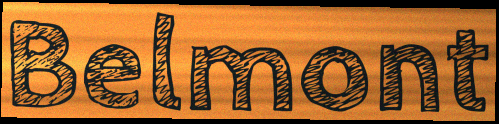
Belmont